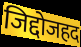
जिद्दोजहद